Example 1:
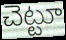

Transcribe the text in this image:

చెట్టూ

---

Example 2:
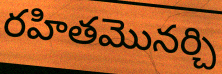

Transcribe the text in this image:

రహితమొనర్చి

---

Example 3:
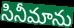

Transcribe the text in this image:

సినీమాను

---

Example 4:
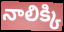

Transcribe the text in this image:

నాలిక్కి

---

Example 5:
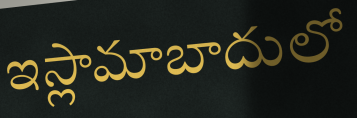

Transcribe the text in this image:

ఇస్లామాబాదులో